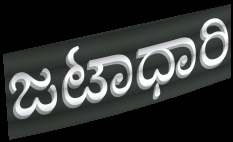
ಜಟಾಧಾರಿ